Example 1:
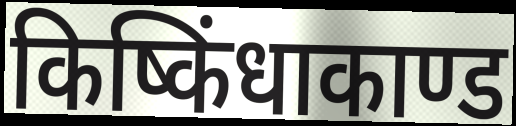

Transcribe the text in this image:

किष्किंधाकाण्ड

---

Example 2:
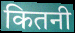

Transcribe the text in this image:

कितनी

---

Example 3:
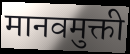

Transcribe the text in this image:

मानवमुक्ती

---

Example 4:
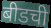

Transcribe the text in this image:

बीडची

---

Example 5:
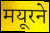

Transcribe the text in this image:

मयूरने